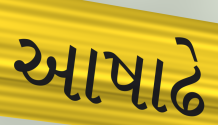
આષાઢે